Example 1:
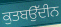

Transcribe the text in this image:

ਕੁਤਬਉੱਦੀਨ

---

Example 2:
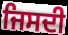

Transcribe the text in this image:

ਜਿਸਦੀ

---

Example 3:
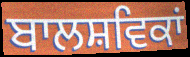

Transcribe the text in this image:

ਬਾਲਸ਼ਵਿਕਾਂ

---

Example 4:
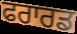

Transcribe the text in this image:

ਫਰਾਰਡ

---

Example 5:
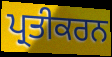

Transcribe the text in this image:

ਪ੍ਰਤੀਕਰਨ